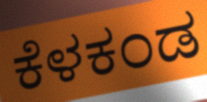
ಕೆಳಕಂಡ